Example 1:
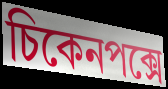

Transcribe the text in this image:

চিকেনপক্সে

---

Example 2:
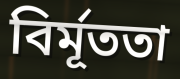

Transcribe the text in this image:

বির্মূততা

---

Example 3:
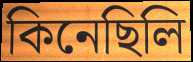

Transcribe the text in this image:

কিনেছিলি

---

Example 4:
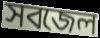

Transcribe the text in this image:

সবজেল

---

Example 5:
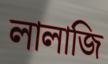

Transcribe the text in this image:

লালাজি